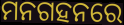
ମନଗହନରେ